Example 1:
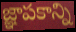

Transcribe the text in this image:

జ్ఞాపకాన్ని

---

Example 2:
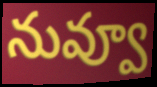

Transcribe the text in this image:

నువ్వూ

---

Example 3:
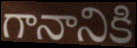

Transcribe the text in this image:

గానానికి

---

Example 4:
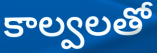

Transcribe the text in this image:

కాల్వలతో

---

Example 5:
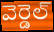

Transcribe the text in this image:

వెర్డెల్